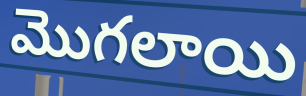
మొగలాయి